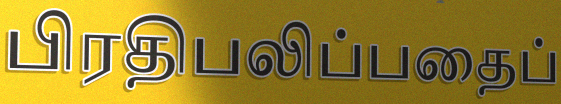
பிரதிபலிப்பதைப்